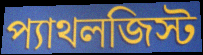
প্যাথলজিস্ট